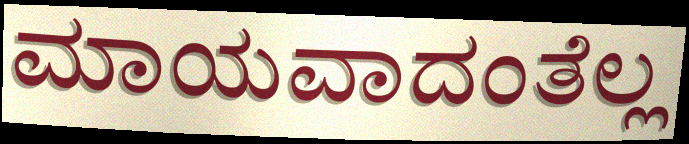
ಮಾಯವಾದಂತೆಲ್ಲ